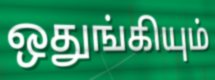
ஒதுங்கியும்